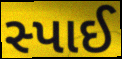
સ્પાઈ